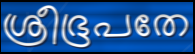
ശ്രീഭൂപതേ